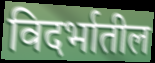
विदर्भातील